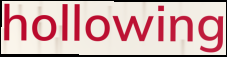
hollowing